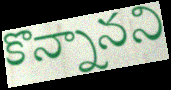
కొన్నానని